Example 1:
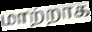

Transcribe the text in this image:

மாற்றாக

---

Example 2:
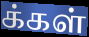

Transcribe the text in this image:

க்கள்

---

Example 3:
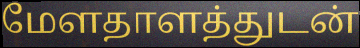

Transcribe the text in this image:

மேளதாளத்துடன்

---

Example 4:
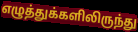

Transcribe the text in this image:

எழுத்துக்களிலிருந்து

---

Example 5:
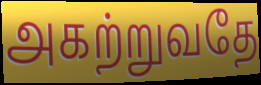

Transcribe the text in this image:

அகற்றுவதே